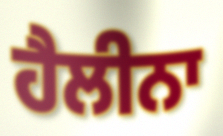
ਹੈਲੀਨਾ